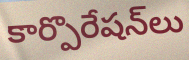
కార్పొరేషన్‌లు